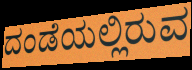
ದಂಡೆಯಲ್ಲಿರುವ